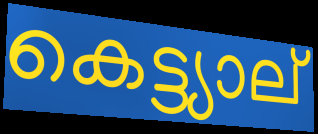
കെട്ട്യാല്